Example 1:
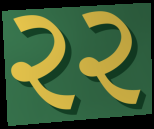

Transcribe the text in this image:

રર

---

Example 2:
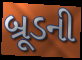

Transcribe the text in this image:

બ્રૂડની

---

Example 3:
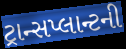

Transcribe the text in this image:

ટ્રાન્સપ્લાન્ટની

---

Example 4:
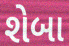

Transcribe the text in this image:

શેબા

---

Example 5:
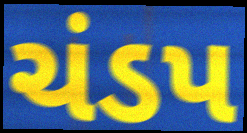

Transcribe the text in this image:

ચંડપ